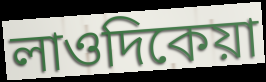
লাওদিকেয়া